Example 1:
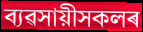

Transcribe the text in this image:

ব্যৱসায়ীসকলৰ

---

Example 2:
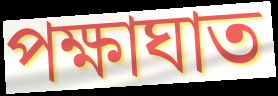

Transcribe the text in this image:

পক্ষাঘাত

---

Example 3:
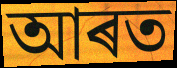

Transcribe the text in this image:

আৰত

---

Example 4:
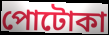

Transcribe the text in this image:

পোটোকা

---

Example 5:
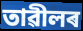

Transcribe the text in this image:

তাৱীলৰ